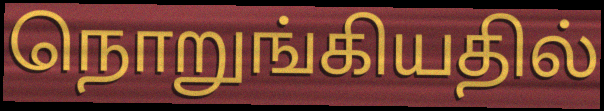
நொறுங்கியதில்